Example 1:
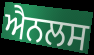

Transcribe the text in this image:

ਐਨਲਸ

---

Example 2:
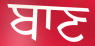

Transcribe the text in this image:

ਬਾਣ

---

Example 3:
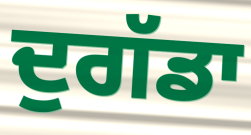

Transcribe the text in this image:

ਦੁਗੱਡਾ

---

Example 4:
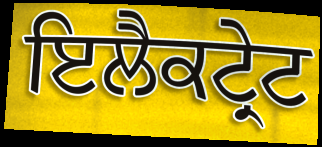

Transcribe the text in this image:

ਇਲੈਕਟ੍ਰੇਟ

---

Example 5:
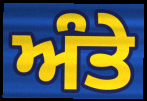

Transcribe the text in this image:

ਅੰਤੇ